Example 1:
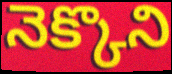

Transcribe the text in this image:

నెక్కొని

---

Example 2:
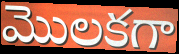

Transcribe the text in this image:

మొలకగా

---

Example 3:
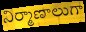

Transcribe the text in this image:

నిర్మాణాలుగా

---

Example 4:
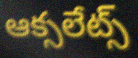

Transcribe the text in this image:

ఆక్సలేట్స్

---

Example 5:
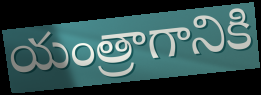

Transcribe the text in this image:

యంత్రాగానికి